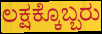
ಲಕ್ಷಕ್ಕೊಬ್ಬರು